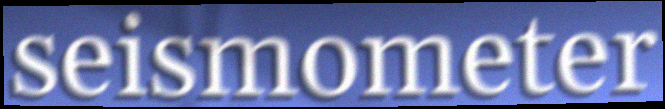
seismometer